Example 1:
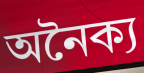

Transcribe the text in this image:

অনৈক্য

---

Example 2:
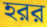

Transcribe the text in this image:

হরর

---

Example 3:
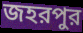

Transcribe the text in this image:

জহরপুর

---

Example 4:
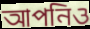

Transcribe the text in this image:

আপনিও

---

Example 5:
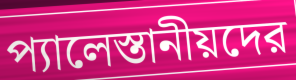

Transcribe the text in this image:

প্যালেস্তানীয়দের